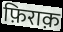
फ़िराक़